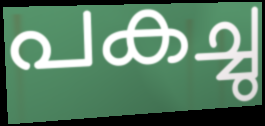
പകച്ചു